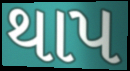
થાપ